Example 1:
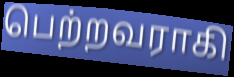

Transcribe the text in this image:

பெற்றவராகி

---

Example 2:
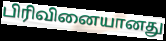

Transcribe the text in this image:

பிரிவினையானது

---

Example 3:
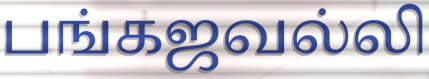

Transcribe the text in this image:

பங்கஜவல்லி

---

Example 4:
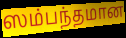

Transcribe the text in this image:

ஸம்பந்தமான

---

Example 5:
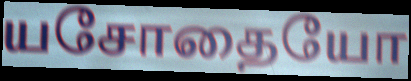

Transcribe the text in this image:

யசோதையோ